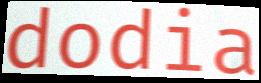
dodia